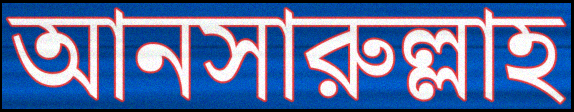
আনসারুল্লাহ